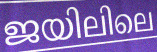
ജയിലിലെ